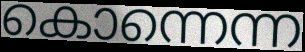
കൊന്നെന്ന